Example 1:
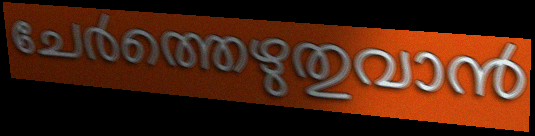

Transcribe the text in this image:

ചേർത്തെഴുതുവാൻ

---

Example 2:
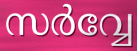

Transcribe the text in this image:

സർവ്വേ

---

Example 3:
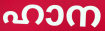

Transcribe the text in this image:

ഹാന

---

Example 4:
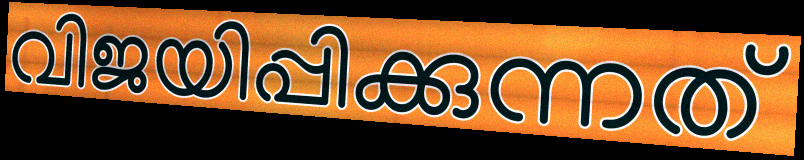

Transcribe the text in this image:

വിജയിപ്പിക്കുന്നത്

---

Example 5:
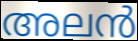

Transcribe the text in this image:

അലൻ